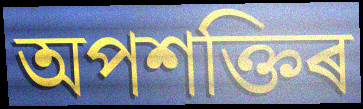
অপশক্তিৰ